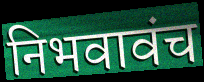
निभवावंच